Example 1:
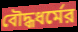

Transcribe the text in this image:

বৌদ্ধধর্মের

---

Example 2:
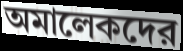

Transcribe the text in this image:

অমালেকদের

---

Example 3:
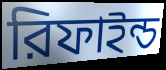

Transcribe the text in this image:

রিফাইন্ড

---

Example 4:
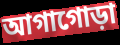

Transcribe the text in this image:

আগাগোড়া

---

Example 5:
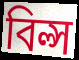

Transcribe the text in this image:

বিল্স